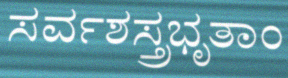
ಸರ್ವಶಸ್ತ್ರಭೃತಾಂ